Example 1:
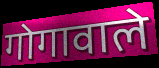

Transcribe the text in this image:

गोगावाले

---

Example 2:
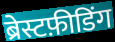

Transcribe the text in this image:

ब्रेस्टफ़ीडिंग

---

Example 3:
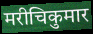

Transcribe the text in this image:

मरीचिकुमार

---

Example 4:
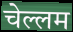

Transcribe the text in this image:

चेल्लम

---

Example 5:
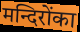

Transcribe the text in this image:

मन्दिरोंका